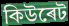
কিউৰেট